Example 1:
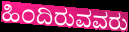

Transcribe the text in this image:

ಹಿಂದಿರುವವರು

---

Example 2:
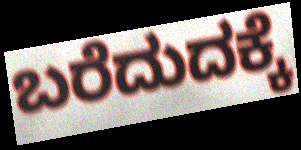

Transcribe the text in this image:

ಬರೆದುದಕ್ಕೆ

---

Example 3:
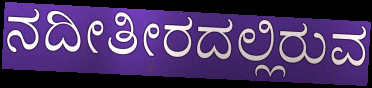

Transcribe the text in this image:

ನದೀತೀರದಲ್ಲಿರುವ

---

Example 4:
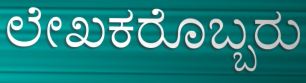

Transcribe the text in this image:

ಲೇಖಕರೊಬ್ಬರು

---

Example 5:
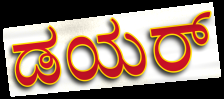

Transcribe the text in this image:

ಡಯರ್